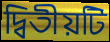
দ্বিতীয়টি